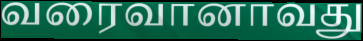
வரைவானாவது